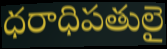
ధరాధిపతులై